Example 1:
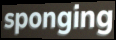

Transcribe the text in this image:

sponging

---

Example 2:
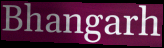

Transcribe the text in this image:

Bhangarh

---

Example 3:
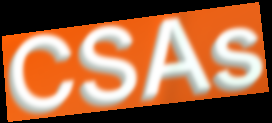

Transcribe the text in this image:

CSAs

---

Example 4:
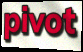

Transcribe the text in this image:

pivot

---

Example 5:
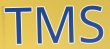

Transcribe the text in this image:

TMS